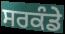
ਸਰਕੰਡੇ